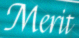
Merit